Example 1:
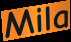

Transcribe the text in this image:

Mila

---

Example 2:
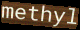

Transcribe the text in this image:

methyl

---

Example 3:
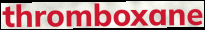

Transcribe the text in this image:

thromboxane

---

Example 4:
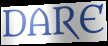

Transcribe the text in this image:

DARE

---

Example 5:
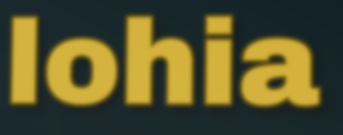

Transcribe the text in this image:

lohia